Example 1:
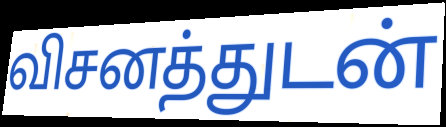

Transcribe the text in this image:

விசனத்துடன்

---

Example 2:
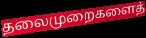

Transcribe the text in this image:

தலைமுறைகளைத்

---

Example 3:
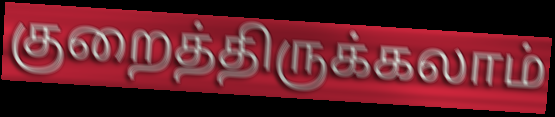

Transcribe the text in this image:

குறைத்திருக்கலாம்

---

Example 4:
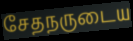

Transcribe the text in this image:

சேதநருடைய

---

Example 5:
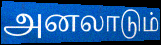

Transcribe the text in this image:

அனலாடும்